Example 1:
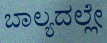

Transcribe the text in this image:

ಬಾಲ್ಯದಲ್ಲೇ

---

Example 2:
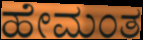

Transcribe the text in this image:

ಹೇಮಂತ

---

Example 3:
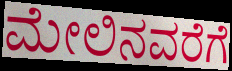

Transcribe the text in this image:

ಮೇಲಿನವರೆಗೆ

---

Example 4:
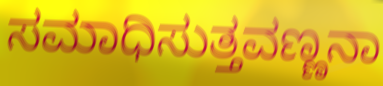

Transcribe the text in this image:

ಸಮಾಧಿಸುತ್ತವಣ್ಣನಾ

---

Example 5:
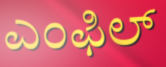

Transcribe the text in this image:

ಎಂಫಿಲ್